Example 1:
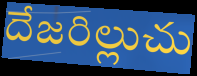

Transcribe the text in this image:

దేజరిల్లుచు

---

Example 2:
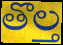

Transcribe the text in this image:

తొల్త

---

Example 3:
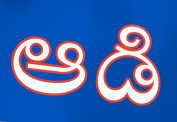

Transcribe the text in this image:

ఆడి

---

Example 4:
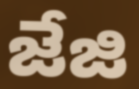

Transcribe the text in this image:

జేజి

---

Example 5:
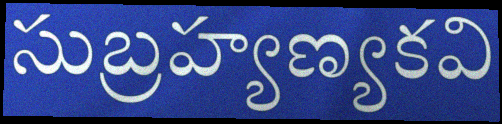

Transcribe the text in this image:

సుబ్రహ్యణ్యకవి